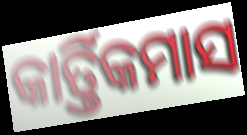
କାର୍ତ୍ତିକମାସ